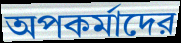
অপকর্মাদের